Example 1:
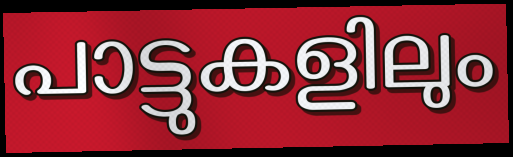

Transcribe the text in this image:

പാട്ടുകളിലും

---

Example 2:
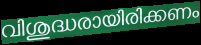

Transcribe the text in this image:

വിശുദ്ധരായിരിക്കണം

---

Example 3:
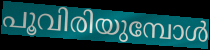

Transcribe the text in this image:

പൂവിരിയുമ്പോൾ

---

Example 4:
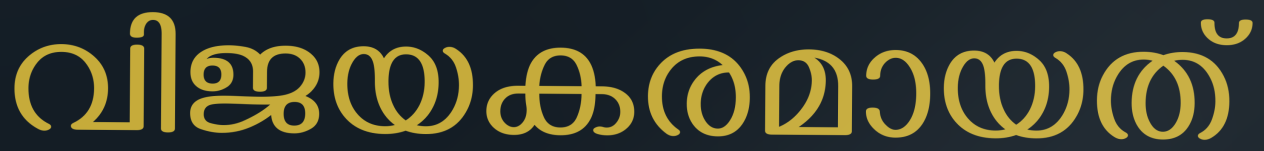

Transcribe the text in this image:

വിജയകരമായത്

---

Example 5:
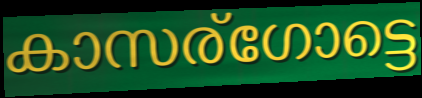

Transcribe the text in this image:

കാസര്ഗോട്ടെ